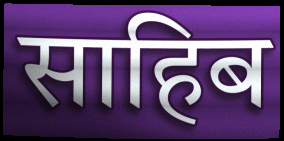
साहिब